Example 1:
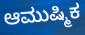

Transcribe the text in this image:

ಆಮುಷ್ಮಿಕ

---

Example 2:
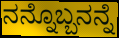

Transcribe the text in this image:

ನನ್ನೊಬ್ಬನನ್ನೆ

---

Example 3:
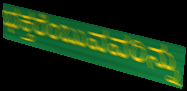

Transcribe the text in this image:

ಭಕ್ತರೆಂಬುವವರಿನ್ನು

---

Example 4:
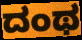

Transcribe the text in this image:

ದಂಥ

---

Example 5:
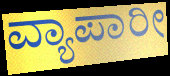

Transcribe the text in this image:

ವ್ಯಾಪಾರೀ